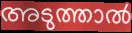
അടുത്താൽ